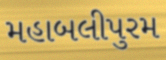
મહાબલીપુરમ